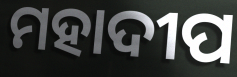
ମହାଦୀପ